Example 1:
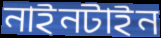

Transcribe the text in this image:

নাইনটাইন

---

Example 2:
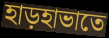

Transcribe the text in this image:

হাড়হাভাতে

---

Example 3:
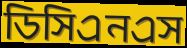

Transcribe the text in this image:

ডিসিএনএস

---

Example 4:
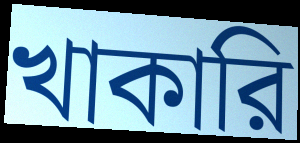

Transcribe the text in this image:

খাকারি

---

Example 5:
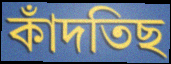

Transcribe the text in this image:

কাঁদতিছ